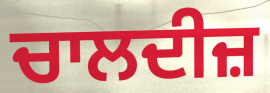
ਚਾਲਦੀਜ਼